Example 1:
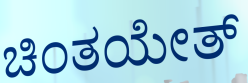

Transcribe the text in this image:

ಚಿಂತಯೇತ್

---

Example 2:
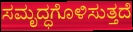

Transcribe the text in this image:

ಸಮೃದ್ಧಗೊಳಿಸುತ್ತದೆ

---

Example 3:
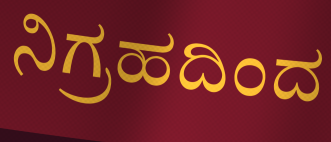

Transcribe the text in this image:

ನಿಗ್ರಹದಿಂದ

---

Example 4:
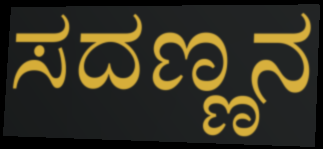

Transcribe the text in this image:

ಸದಣ್ಣನ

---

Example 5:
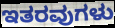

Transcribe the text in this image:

ಇತರವುಗಳು